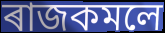
ৰাজকমলে